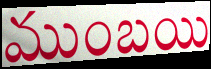
ముంబయి